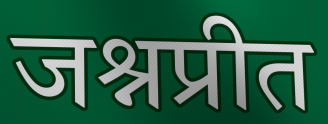
जश्नप्रीत